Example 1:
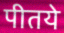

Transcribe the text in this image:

पीतये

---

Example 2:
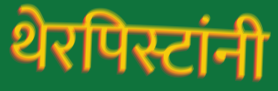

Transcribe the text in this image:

थेरपिस्टांनी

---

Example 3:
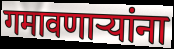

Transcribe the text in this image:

गमावणाऱ्यांना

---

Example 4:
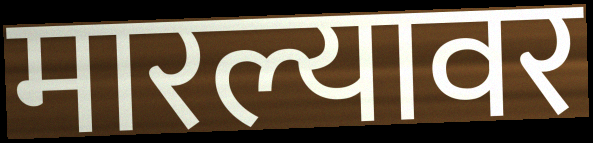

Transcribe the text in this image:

मारल्यावर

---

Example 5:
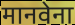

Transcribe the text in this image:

मानवेना